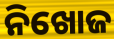
ନିଖୋଜ